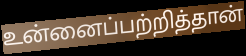
உன்னைப்பற்றித்தான்